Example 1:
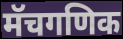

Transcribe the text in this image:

मॅचगणिक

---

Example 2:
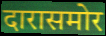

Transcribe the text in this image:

दारासमोर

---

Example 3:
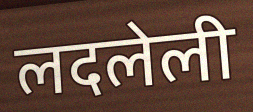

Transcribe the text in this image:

लदलेली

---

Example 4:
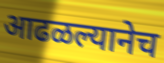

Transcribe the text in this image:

आढळल्यानेच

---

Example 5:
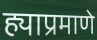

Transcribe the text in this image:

ह्याप्रमाणे